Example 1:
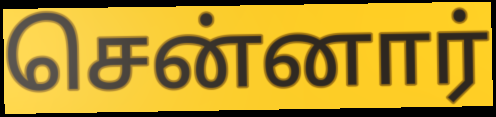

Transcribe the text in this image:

சென்னார்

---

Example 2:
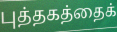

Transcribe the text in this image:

புத்தகத்தைக்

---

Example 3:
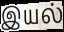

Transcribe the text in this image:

இயல்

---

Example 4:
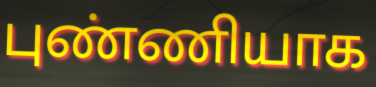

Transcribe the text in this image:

புண்ணியாக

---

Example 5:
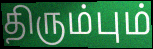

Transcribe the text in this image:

திரும்பும்